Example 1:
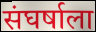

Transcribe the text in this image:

संघर्षाला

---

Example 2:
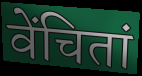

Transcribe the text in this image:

वेंचितां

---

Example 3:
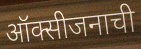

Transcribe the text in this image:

ऑक्सीजनाची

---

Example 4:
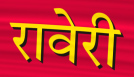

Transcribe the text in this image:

रावेरी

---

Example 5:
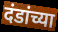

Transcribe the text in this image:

दंडांच्या